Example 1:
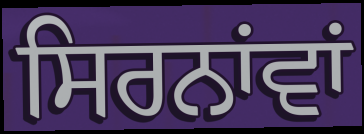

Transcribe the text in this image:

ਸਿਰਨਾਂਵਾਂ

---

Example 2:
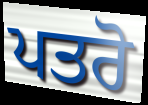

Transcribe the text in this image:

ਪਤਰੋ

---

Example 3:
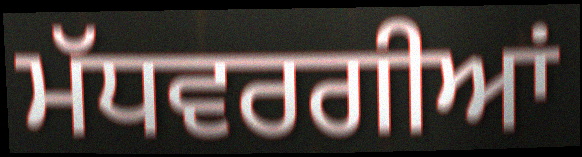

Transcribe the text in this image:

ਮੱਧਵਰਗੀਆਂ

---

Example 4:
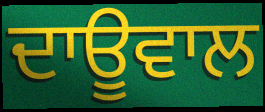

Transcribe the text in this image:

ਦਾਊਵਾਲ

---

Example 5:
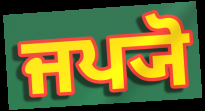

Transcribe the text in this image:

ਜਪ੍ਯੋ